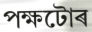
পক্ষটোৰ